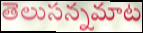
తెలుసన్నమాట